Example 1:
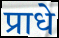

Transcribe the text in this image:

प्राधे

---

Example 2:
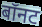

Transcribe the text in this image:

बॉनट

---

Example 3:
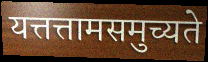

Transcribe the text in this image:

यत्तत्तामसमुच्यते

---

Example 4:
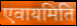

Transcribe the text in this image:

एवायमिति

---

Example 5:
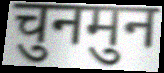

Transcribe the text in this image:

चुनमुन